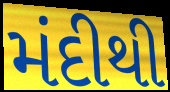
મંદીથી